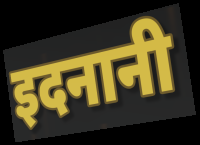
इदनानी